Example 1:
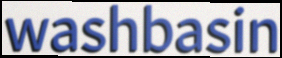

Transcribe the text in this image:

washbasin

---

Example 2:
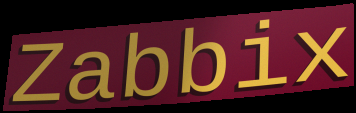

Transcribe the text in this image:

Zabbix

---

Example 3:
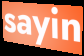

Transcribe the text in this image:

sayin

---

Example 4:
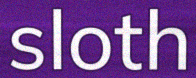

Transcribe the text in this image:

sloth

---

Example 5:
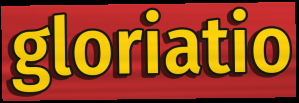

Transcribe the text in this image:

gloriatio